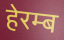
हेरम्ब